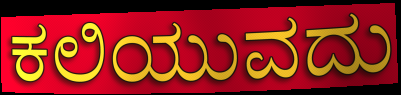
ಕಲಿಯುವದು